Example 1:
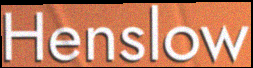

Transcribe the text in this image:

Henslow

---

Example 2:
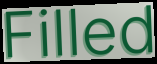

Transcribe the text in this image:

Filled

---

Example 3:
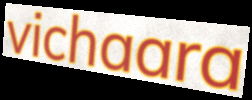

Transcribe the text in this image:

vichaara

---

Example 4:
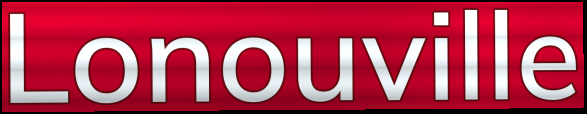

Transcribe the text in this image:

Lonouville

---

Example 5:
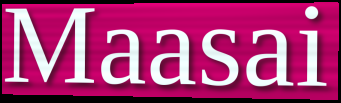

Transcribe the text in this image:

Maasai